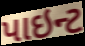
પાઇન્ટ